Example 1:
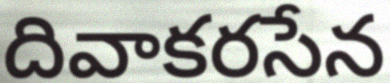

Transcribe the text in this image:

దివాకరసేన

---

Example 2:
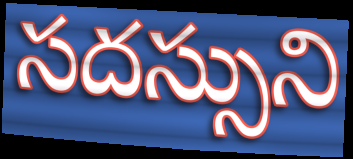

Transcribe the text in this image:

సదస్సుని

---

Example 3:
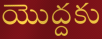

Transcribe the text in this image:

యొద్దకు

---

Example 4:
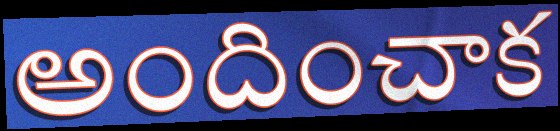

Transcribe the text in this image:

అందించాక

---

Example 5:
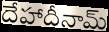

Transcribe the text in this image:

దేహాదీనామ్